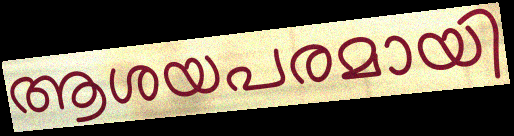
ആശയപരമായി